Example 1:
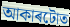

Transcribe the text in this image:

আকাৰটোত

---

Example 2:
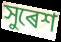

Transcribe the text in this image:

সুৰেশ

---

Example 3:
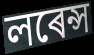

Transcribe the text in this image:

লৰেন্স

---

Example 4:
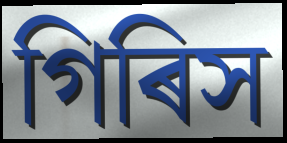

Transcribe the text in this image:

গিৰিস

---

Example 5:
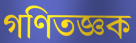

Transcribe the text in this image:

গণিতজ্ঞক